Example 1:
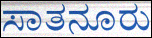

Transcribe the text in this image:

ಸಾತನೂರು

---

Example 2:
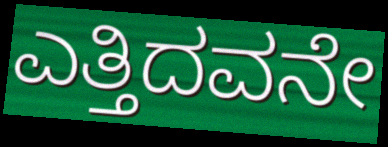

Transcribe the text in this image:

ಎತ್ತಿದವನೇ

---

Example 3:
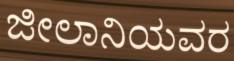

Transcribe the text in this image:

ಜೀಲಾನಿಯವರ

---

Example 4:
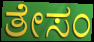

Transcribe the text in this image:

ತೇಸಂ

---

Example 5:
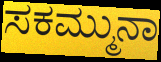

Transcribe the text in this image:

ಸಕಮ್ಮುನಾ